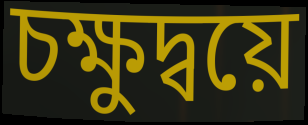
চক্ষুদ্বয়ে